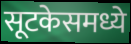
सूटकेसमध्ये